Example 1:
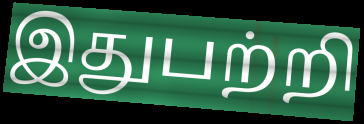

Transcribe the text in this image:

இதுபற்றி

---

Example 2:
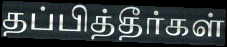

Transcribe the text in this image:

தப்பித்தீர்கள்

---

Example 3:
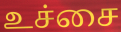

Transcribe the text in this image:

உச்சை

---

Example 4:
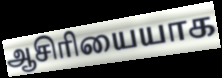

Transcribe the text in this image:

ஆசிரியையாக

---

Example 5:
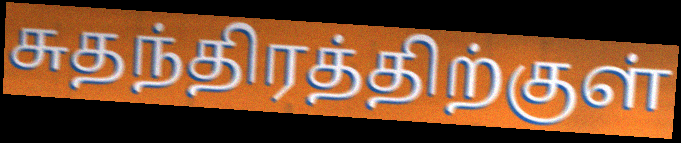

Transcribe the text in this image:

சுதந்திரத்திற்குள்